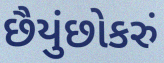
છૈયુંછોકરું